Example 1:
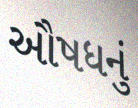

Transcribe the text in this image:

ઔષધનું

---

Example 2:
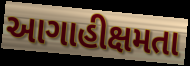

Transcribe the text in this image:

આગાહીક્ષમતા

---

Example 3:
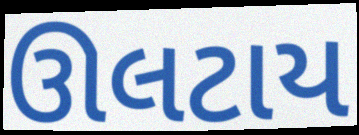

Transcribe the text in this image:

ઊલટાય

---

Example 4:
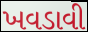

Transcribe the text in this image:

ખવડાવી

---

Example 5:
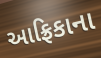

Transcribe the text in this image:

આફ્રિકાના